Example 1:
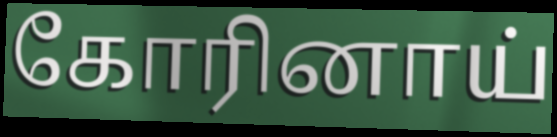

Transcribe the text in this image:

கோரினாய்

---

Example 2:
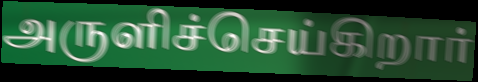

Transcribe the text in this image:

அருளிச்செய்கிறார்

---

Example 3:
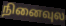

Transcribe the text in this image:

நினைவுல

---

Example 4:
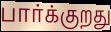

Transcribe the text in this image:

பார்க்குறது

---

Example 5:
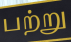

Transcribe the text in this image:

பற்று